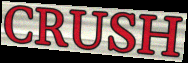
CRUSH